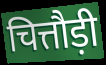
चित्तौड़ी